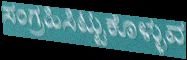
ಸಂಗ್ರಹಿಸಿಟ್ಟುಕೊಳ್ಳುವ